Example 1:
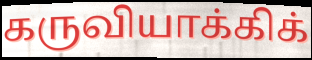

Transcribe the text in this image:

கருவியாக்கிக்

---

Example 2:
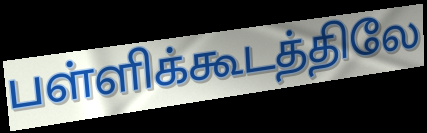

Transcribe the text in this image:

பள்ளிக்கூடத்திலே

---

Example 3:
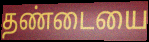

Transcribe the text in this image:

தண்டையை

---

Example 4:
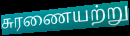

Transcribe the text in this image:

சுரணையற்று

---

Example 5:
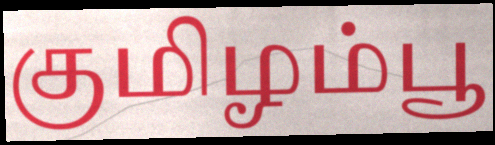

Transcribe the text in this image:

குமிழம்பூ